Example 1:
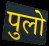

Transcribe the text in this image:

पुलो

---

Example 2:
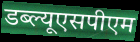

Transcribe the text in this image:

डब्ल्यूएसपीएम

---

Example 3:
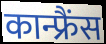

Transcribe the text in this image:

कान्फ्रैंस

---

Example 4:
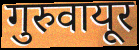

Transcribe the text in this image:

गुरुवायूर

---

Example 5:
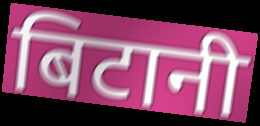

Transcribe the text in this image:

बिटानी